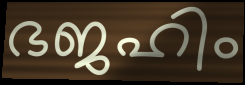
ഭജഹിം